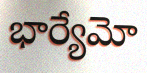
భార్యేమో